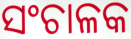
ସଂଚାଳକ